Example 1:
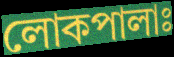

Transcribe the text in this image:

লোকপালাঃ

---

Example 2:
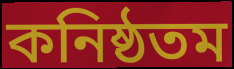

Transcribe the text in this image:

কনিষ্ঠতম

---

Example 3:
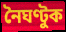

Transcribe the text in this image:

নৈঘণ্টুক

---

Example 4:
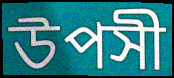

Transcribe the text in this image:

উপসী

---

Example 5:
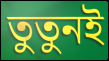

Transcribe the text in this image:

তুতুনই